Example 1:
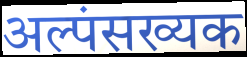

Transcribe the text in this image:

अल्पंसख्यक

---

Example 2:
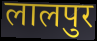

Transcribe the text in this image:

लालपुर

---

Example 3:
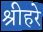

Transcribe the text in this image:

श्रीहरे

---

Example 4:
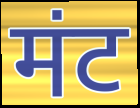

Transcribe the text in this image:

मंट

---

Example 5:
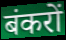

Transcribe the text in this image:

बंकरों